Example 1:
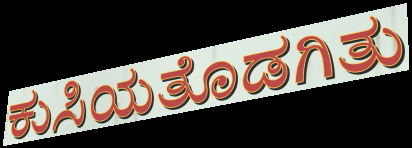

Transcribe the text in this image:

ಕುಸಿಯತೊಡಗಿತು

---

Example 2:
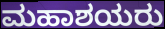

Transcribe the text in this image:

ಮಹಾಶಯರು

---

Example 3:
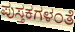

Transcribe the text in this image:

ಪುಸ್ತಕಗಳಂತೆ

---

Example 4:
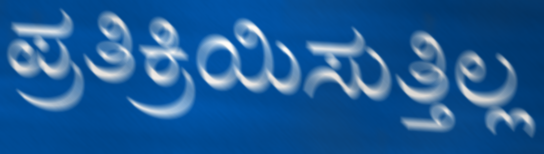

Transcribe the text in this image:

ಪ್ರತಿಕ್ರಿಯಿಸುತ್ತಿಲ್ಲ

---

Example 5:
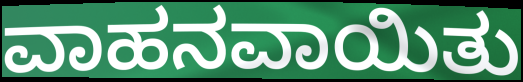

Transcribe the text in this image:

ವಾಹನವಾಯಿತು